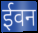
ईवन